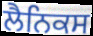
ਲੈਨਿਕਸ